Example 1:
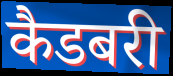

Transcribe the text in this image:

कैडबरी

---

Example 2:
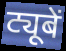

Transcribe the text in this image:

ट्यूबें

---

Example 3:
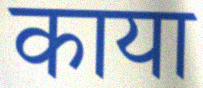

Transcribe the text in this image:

काया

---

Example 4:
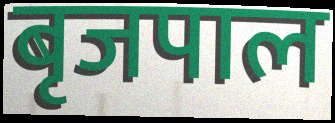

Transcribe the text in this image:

बृजपाल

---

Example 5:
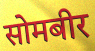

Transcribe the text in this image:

सोमबीर